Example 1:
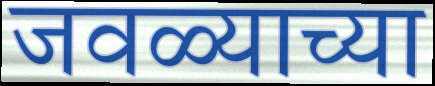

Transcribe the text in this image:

जवळ्याच्या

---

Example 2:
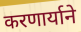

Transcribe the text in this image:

करणार्याने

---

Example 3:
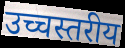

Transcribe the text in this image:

उच्चस्तरीय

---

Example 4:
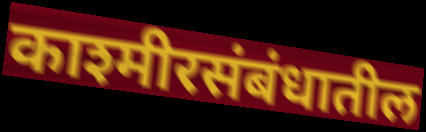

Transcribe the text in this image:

काश्मीरसंबंधातील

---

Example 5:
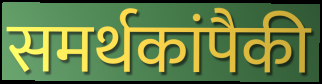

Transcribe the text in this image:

समर्थकांपैकी